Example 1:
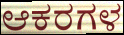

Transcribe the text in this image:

ಆಕರಗಳ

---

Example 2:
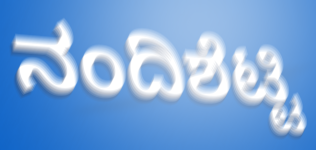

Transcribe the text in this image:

ನಂದಿಶೆಟ್ಟಿ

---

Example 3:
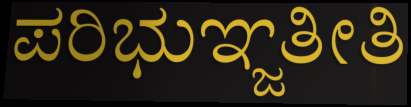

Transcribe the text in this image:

ಪರಿಭುಞ್ಜತೀತಿ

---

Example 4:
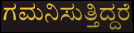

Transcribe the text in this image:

ಗಮನಿಸುತ್ತಿದ್ದರೆ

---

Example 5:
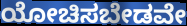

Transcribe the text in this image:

ಯೋಚಿಸಬೇಡವೇ